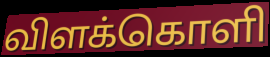
விளக்கொளி